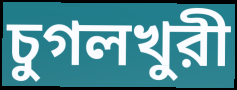
চুগলখুরী